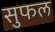
सुफल